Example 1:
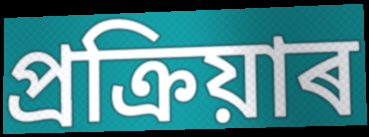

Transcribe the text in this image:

প্ৰক্ৰিয়াৰ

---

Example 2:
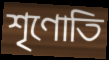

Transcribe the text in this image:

শৃণোতি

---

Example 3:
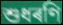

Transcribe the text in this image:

শুধৰণি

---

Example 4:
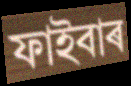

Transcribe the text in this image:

ফাইবাৰ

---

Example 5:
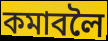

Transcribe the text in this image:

কমাবলৈ